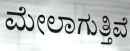
ಮೇಲಾಗುತ್ತಿವೆ